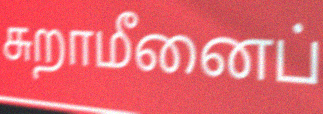
சுறாமீனைப்